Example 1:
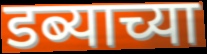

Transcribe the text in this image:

डब्याच्या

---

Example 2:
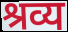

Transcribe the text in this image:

श्रव्य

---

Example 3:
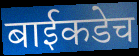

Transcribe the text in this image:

बाईकडेच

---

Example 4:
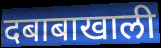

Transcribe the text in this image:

दबाबाखाली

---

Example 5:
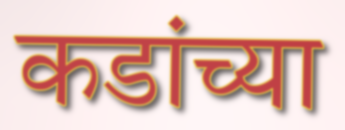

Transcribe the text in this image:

कडांच्या